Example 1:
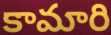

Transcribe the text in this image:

కామారి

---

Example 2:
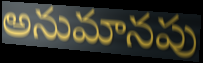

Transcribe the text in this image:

అనుమానపు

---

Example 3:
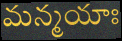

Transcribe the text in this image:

మన్మయాః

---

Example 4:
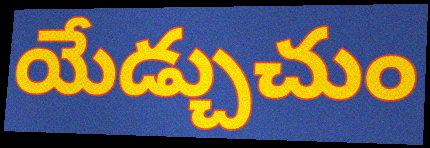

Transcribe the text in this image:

యేడ్చుచుం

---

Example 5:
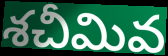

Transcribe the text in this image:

శచీమివ